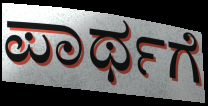
ಪಾರ್ಥಗೆ